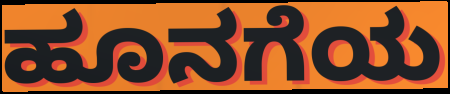
ಹೂನಗೆಯ